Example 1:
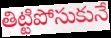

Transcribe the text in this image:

తిట్టిపోసుకునే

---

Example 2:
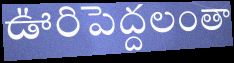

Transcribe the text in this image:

ఊరిపెద్దలంతా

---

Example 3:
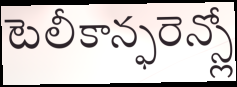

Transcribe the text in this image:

టెలీకాన్ఫరెన్స్లో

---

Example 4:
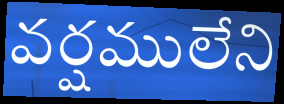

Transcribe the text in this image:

వర్షములేని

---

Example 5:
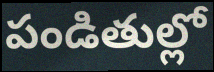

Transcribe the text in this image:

పండితుల్లో